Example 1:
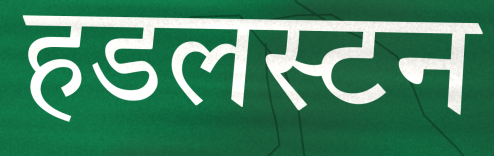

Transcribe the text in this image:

हडलस्टन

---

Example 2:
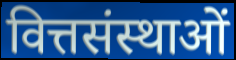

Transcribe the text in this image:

वित्तसंस्थाओं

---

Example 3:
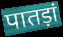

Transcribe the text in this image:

पातड़ां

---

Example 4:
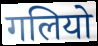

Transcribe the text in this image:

गलियो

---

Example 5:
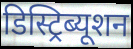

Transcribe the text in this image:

डिस्ट्रिब्यूशन